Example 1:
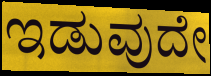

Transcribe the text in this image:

ಇಡುವುದೇ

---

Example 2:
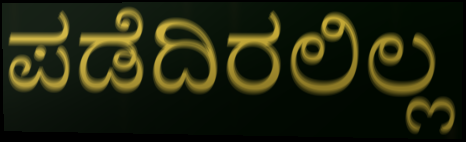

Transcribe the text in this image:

ಪಡೆದಿರಲಿಲ್ಲ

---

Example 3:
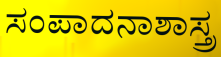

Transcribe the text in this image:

ಸಂಪಾದನಾಶಾಸ್ತ್ರ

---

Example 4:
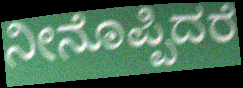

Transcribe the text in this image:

ನೀನೊಪ್ಪಿದರೆ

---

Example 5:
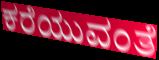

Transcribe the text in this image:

ಕರೆಯುವಂತೆ